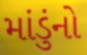
માંડુંનો